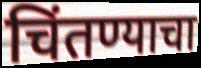
चिंतण्याचा